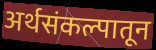
अर्थसंकल्पातून